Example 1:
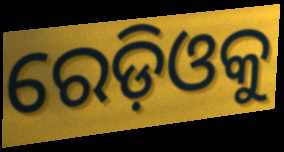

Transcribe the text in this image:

ରେଡ଼ିଓକୁ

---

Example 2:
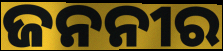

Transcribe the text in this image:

ଜନନୀର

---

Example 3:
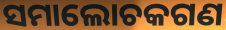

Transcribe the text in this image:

ସମାଲୋଚକଗଣ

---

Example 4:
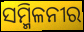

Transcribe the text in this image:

ସମ୍ମିଳନୀର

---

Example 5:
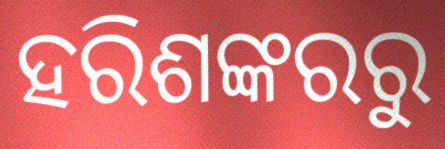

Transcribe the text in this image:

ହରିଶଙ୍କରରୁ